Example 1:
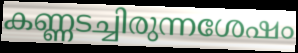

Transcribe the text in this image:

കണ്ണടച്ചിരുന്നശേഷം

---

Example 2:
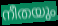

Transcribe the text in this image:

നീതയും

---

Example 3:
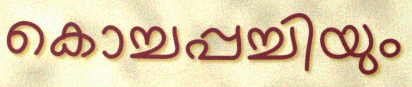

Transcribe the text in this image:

കൊച്ചപ്പച്ചിയും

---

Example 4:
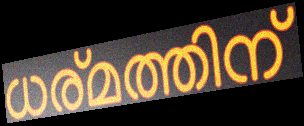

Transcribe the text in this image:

ധര്മത്തിന്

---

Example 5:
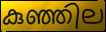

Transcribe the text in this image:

കുഞ്ഞില